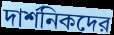
দার্শনিকদের